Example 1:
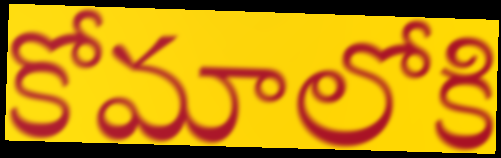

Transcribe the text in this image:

కోమాలోకి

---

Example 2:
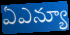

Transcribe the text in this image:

ఏఎన్యూ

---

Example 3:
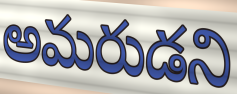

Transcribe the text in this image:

అమరుడని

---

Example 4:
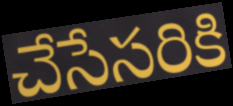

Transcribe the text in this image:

చేసేసరికి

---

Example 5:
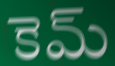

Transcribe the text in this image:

కెమ్